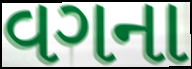
વગના